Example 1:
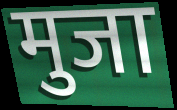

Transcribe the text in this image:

मुजा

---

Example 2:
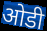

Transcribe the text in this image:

ओडी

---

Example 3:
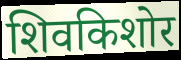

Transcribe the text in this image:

शिवकिशोर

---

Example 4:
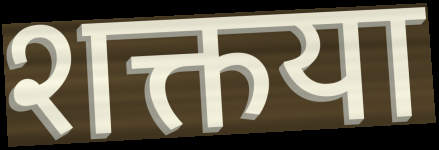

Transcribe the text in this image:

शक्तया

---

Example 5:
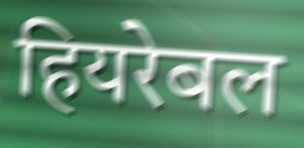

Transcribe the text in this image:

हियरेबल